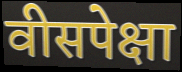
वीसपेक्षा